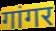
गांगर